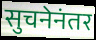
सुचनेनंतर